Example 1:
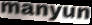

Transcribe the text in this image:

manyun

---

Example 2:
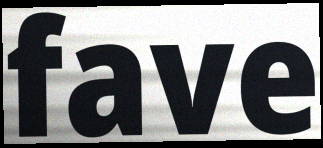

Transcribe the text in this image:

fave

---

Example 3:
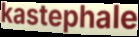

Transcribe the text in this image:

kastephale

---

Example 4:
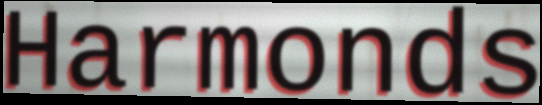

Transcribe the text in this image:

Harmonds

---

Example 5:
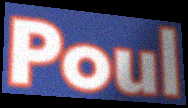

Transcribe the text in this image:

Poul